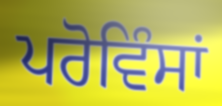
ਪਰੋਵਿੰਸਾਂ